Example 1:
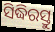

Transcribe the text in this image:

ସିଦ୍ଧିରସ୍ତୁ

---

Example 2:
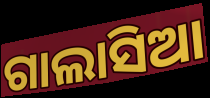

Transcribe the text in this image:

ଗାଲାସିଆ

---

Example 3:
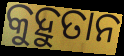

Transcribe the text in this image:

କୁହୁତାନ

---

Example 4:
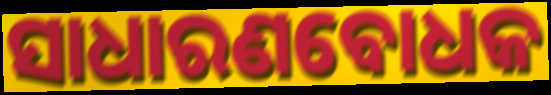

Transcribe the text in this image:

ସାଧାରଣବୋଧକ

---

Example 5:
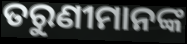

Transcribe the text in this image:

ତରୁଣୀମାନଙ୍କ